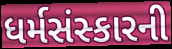
ધર્મસંસ્કારની